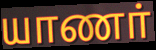
யாணர்